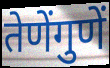
तेणेंगुणें